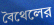
বৈথেলের